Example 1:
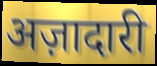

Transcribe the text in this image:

अज़ादारी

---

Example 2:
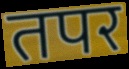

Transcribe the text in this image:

तपर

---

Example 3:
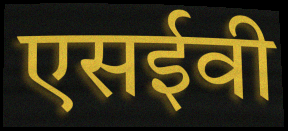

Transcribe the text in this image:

एसईवी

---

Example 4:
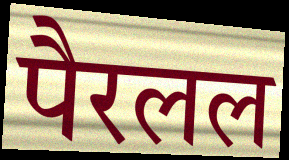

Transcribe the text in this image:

पैरलल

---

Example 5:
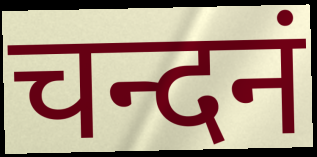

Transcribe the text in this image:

चन्दनं